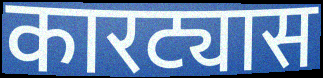
कारट्यास